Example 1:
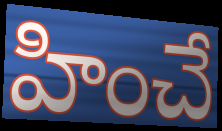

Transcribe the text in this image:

హించే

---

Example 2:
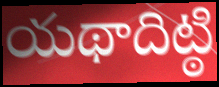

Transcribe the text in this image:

యథాదిట్ఠి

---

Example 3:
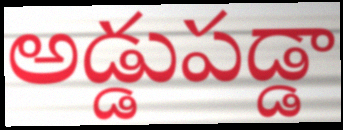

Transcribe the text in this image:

అడ్డుపడ్డా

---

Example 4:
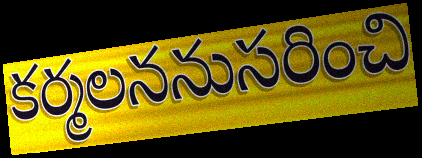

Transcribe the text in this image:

కర్మలననుసరించి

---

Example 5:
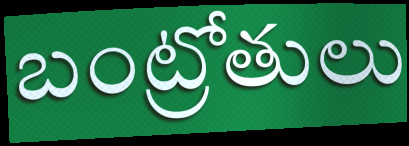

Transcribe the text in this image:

బంట్రోతులు